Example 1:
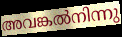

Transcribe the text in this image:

അവങ്കൽനിന്നു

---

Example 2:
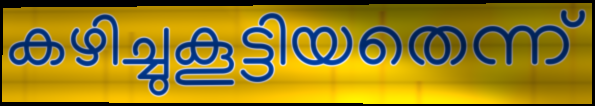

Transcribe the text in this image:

കഴിച്ചുകൂട്ടിയതെന്ന്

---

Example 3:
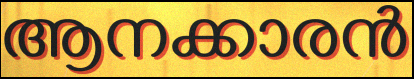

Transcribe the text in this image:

ആനക്കാരൻ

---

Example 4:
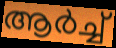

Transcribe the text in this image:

ആർച്ച്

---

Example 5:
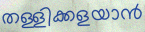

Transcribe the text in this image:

തള്ളിക്കളയാൻ